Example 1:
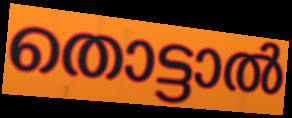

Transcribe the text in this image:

തൊട്ടാൽ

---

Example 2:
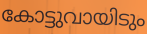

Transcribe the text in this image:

കോട്ടുവായിടും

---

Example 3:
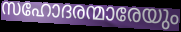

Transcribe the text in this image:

സഹോദരന്മാരേയും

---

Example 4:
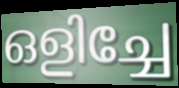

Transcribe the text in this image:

ഒളിച്ചേ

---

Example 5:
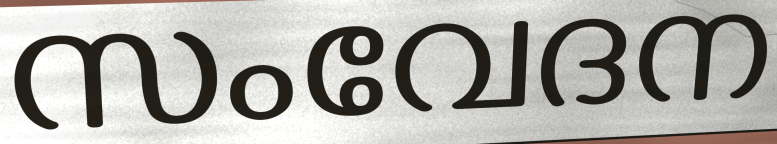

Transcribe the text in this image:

സംവേദന